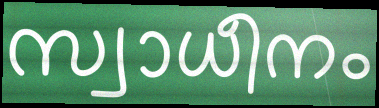
സ്വാധീനം